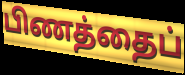
பிணத்தைப்